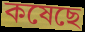
কষেছে